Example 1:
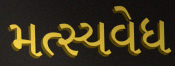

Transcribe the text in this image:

મત્સ્યવેધ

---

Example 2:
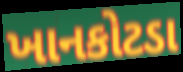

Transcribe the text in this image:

ખાનકોટડા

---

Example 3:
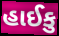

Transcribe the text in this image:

હાઈકુ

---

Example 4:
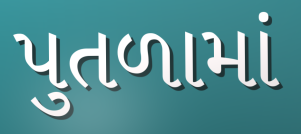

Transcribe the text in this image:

પુતળામાં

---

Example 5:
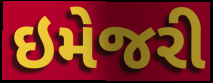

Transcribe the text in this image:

ઇમેજરી